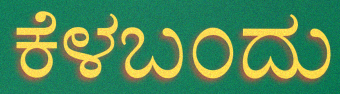
ಕೆಳಬಂದು